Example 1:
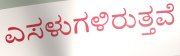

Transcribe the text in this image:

ಎಸಳುಗಳಿರುತ್ತವೆ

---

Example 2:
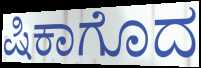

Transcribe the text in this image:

ಷಿಕಾಗೊದ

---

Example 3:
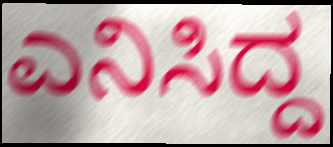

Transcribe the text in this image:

ಎನಿಸಿದ್ದ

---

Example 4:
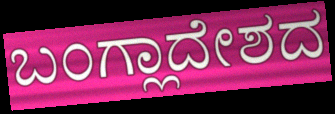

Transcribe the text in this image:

ಬಂಗ್ಲಾದೇಶದ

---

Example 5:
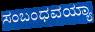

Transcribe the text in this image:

ಸಂಬಂಧವಯ್ಯಾ